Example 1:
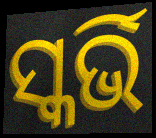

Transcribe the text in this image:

ସ୍କର୍ଭି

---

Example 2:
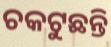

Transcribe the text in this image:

ଚକଟୁଛନ୍ତି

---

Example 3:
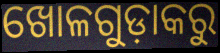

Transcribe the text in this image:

ଖୋଳଗୁଡ଼ାକରୁ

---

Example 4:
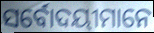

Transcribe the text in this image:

ସର୍ବୋଦୟୀମାନେ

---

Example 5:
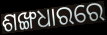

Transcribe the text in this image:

ଶଙ୍ଖଧାରରେ